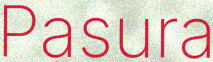
Pasura